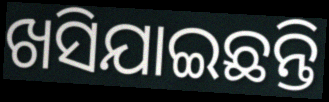
ଖସିଯାଇଛନ୍ତି